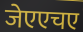
जेएएचए